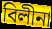
বিলীনা